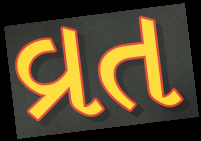
વ્રત